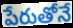
పేరుతోనే